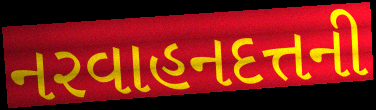
નરવાહનદત્તની